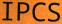
IPCS